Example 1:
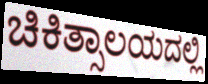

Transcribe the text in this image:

ಚಿಕಿತ್ಸಾಲಯದಲ್ಲಿ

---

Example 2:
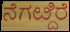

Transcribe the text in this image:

ನೆಗೞ್ದಿರೆ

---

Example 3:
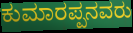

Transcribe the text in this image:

ಕುಮಾರಪ್ಪನವರು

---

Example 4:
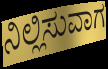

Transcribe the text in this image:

ನಿಲ್ಲಿಸುವಾಗ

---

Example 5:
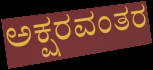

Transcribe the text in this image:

ಅಕ್ಷರವಂತರ